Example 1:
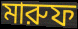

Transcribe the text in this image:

মাৰুফ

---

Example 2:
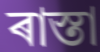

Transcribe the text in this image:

ৰাস্তা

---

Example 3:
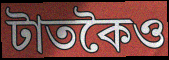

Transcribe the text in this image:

টাতকৈও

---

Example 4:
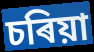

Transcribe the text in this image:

চৰিয়া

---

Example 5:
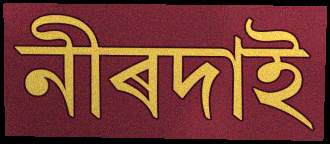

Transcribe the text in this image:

নীৰদাই